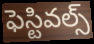
ఫెస్టివల్స్